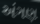
અંગણ